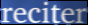
reciter